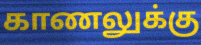
காணலுக்கு